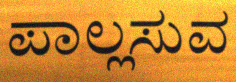
ಪಾಲ್ಲಸುವ